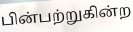
பின்பற்றுகின்ற